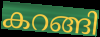
കറങ്ങി